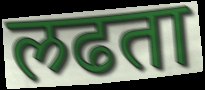
लढता